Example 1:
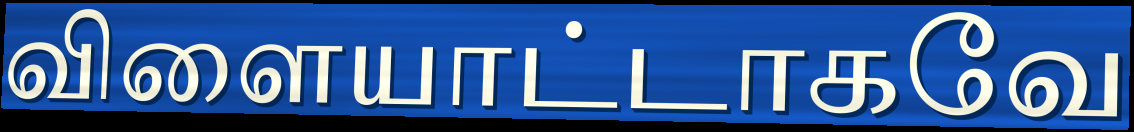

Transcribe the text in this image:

விளையாட்டாகவே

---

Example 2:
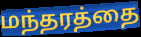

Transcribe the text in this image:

மந்தரத்தை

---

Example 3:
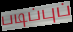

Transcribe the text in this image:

படிப்புப்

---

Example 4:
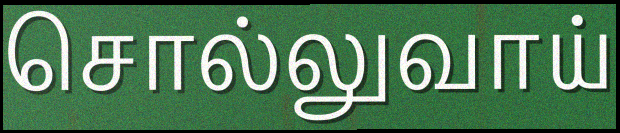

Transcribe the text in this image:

சொல்லுவாய்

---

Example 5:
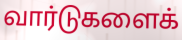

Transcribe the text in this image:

வார்டுகளைக்